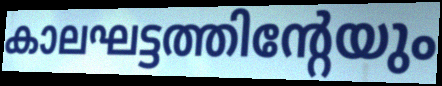
കാലഘട്ടത്തിന്റേയും